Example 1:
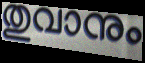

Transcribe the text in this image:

തുവാനും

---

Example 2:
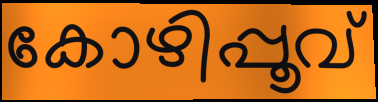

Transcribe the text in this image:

കോഴിപ്പൂവ്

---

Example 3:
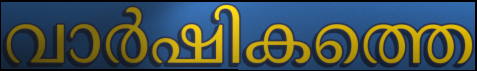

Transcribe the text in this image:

വാർഷികത്തെ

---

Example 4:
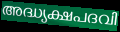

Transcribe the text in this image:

അദ്ധ്യക്ഷപദവി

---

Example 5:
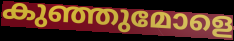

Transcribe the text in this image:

കുഞ്ഞുമോളെ